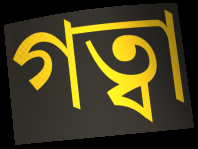
গত্বা